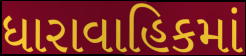
ધારાવાહિકમાં